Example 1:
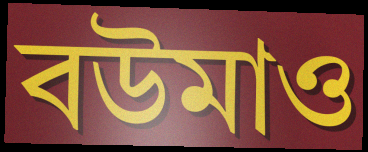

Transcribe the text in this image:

বউমাও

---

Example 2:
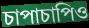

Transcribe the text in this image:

চাপাচাপিও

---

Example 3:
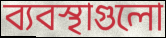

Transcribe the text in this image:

ব্যবস্থাগুলো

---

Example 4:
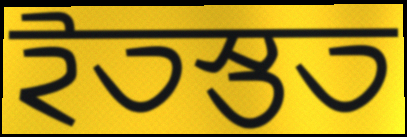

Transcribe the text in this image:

ইতস্তত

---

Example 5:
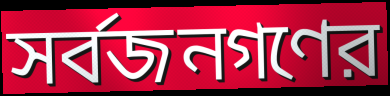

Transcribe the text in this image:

সর্বজনগণের